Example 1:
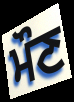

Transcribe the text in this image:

ਮੌਣ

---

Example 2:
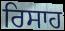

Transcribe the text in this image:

ਰਿਸਾਹ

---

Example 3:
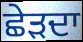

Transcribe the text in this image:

ਛੇੜਦਾ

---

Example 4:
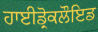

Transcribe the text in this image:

ਹਾਈਡ੍ਰੋਕਲੌਇਡ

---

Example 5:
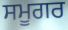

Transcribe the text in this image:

ਸਮੂਗਰ